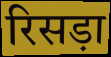
रिसड़ा